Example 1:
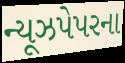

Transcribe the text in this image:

ન્યૂઝપેપરના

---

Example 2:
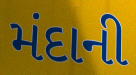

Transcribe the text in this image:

મંદાની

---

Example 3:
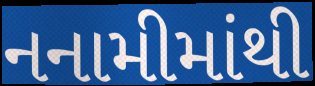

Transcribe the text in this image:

નનામીમાંથી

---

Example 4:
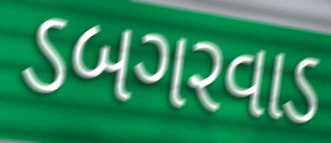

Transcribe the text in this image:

ડબગરવાડ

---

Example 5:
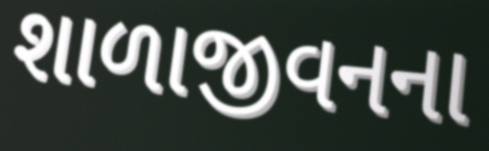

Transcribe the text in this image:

શાળાજીવનના